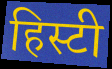
हिस्टी